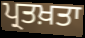
ਪ੍ਰਤਖ਼ਤਾ